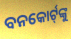
ବନକୋର୍ଟ୍‍ଙ୍କୁ